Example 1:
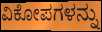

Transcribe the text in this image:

ವಿಕೋಪಗಳನ್ನು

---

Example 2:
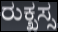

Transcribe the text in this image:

ರುಕ್ಖಸ್ಸ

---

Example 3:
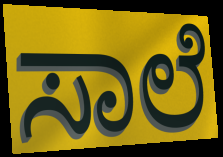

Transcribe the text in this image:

ಸಾಲೆ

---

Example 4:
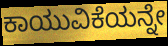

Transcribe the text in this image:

ಕಾಯುವಿಕೆಯನ್ನೇ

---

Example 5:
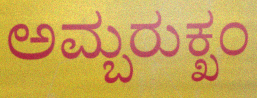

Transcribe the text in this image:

ಅಮ್ಬರುಕ್ಖಂ